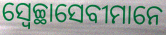
ସ୍ୱେଚ୍ଛାସେବୀମାନେ